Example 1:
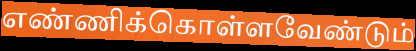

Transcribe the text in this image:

எண்ணிக்கொள்ளவேண்டும்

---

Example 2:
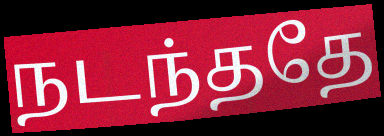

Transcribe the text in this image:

நடந்ததே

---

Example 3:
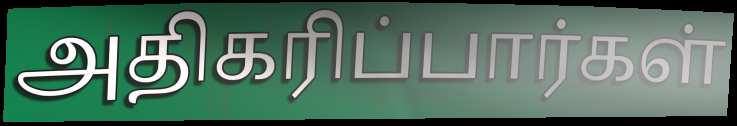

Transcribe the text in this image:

அதிகரிப்பார்கள்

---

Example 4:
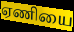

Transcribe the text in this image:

ஏணியை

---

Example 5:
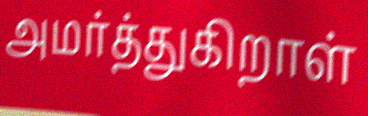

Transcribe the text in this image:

அமர்த்துகிறாள்